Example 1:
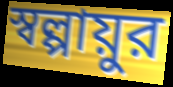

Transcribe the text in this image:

স্বল্পায়ুর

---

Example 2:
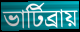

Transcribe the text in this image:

ভার্টিব্রায়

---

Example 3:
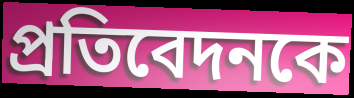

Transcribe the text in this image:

প্রতিবেদনকে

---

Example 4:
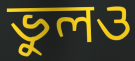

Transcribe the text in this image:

ভুলও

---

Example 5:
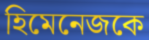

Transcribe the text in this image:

হিমেনেজকে